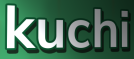
kuchi